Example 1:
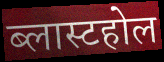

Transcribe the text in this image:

ब्लास्टहोल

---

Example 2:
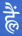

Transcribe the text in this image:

ह्लैं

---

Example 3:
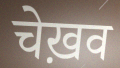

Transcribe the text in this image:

चेख़व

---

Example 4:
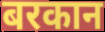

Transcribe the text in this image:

बरकान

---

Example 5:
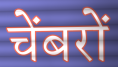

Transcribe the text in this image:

चेंबरों